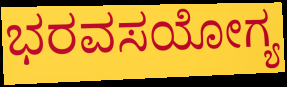
ಭರವಸಯೋಗ್ಯ